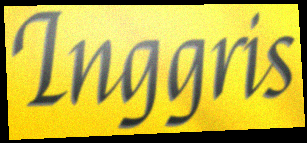
Inggris